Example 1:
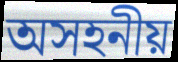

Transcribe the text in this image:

অসহনীয়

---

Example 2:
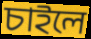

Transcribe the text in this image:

চাইলে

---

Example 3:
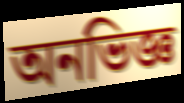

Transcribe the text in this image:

অনভিজ্ঞ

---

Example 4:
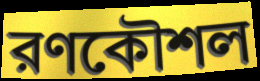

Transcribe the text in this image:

রণকৌশল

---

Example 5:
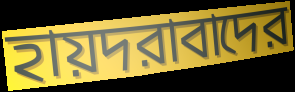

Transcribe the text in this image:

হায়দরাবাদের